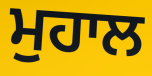
ਮੁਹਾਲ